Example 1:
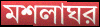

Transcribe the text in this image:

মশলাঘর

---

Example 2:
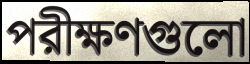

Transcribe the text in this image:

পরীক্ষণগুলো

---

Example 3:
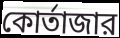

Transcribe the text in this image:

কোর্তাজার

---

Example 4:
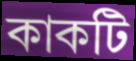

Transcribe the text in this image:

কাকটি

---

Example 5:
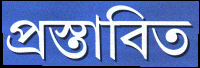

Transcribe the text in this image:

প্রস্তাবিত